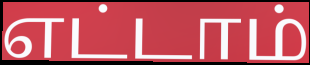
எட்டாம்